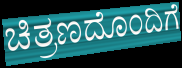
ಚಿತ್ರಣದೊಂದಿಗೆ